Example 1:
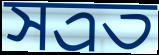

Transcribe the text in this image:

সত্ৰত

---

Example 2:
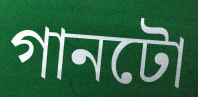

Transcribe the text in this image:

গানটো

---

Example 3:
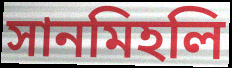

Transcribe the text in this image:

সানমিহলি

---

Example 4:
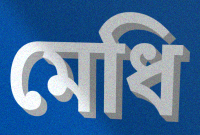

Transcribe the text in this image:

মেধি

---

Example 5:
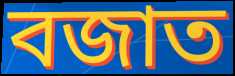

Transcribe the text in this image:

বজাত